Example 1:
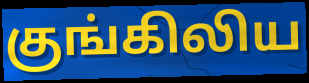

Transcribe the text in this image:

குங்கிலிய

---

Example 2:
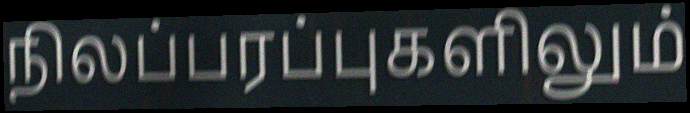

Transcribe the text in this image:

நிலப்பரப்புகளிலும்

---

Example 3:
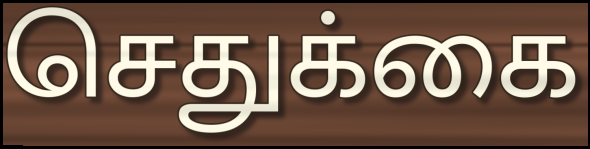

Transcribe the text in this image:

செதுக்கை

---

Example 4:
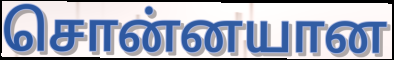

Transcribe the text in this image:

சொன்னயான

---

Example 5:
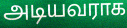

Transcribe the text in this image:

அடியவராக